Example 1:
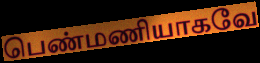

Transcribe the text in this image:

பெண்மணியாகவே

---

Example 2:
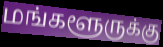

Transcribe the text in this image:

மங்களூருக்கு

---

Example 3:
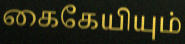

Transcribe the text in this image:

கைகேயியும்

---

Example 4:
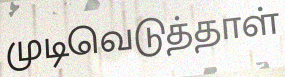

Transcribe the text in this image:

முடிவெடுத்தாள்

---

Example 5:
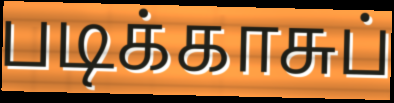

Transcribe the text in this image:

படிக்காசுப்